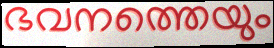
ഭവനത്തെയും